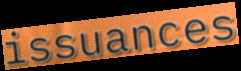
issuances